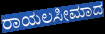
ರಾಯಲಸೀಮಾದ